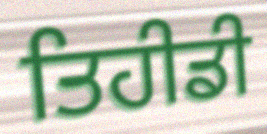
ਤਿਹੀਡੀ